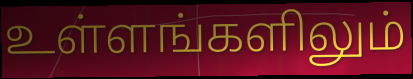
உள்ளங்களிலும்